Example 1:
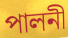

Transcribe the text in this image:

পালনী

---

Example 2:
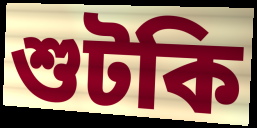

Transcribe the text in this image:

শুটকি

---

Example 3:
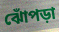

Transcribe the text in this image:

ঝোঁপড়া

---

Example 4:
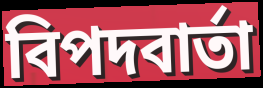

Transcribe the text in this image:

বিপদবার্তা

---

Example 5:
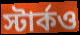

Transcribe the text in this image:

স্টার্কও